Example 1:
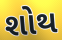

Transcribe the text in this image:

શોથ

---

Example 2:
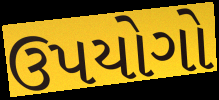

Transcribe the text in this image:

ઉપયોગો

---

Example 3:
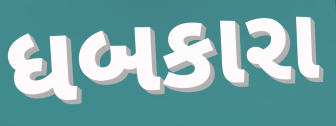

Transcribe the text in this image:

ધબકારા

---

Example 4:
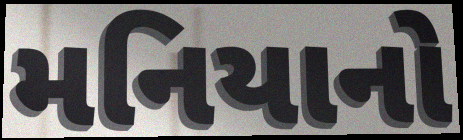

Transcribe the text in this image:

મનિયાનો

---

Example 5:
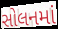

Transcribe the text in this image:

સોલનમાં